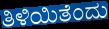
ತಿಳಿಯಿತೆಂದು